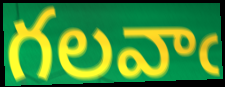
గలవాఁ